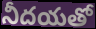
నీదయతో